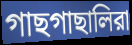
গাছগাছালিরা